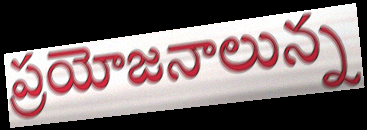
ప్రయోజనాలున్న